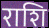
राशि